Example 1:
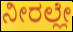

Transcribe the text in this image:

ನೀರಲ್ಲೇ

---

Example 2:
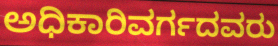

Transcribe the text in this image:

ಅಧಿಕಾರಿವರ್ಗದವರು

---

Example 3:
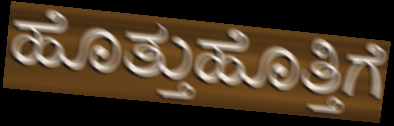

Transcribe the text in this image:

ಹೊತ್ತುಹೊತ್ತಿಗೆ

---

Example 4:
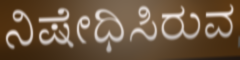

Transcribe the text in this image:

ನಿಷೇಧಿಸಿರುವ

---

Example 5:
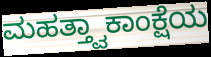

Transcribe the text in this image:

ಮಹತ್ತ್ವಾಕಾಂಕ್ಷೆಯ